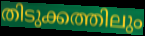
തിടുക്കത്തിലും